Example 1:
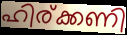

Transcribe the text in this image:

ഹിര്ക്കണി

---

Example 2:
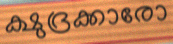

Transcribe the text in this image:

ക്ഷുദ്രക്കാരോ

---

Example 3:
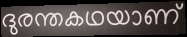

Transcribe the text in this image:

ദുരന്തകഥയാണ്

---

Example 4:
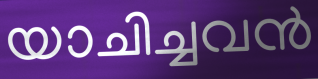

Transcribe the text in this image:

യാചിച്ചവൻ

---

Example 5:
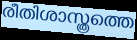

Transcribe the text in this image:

രീതിശാസ്ത്രത്തെ